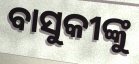
ବାସୁକୀଙ୍କୁ